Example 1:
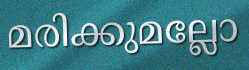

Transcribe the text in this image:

മരിക്കുമല്ലോ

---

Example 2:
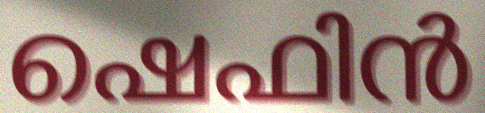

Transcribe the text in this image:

ഷെഫിൻ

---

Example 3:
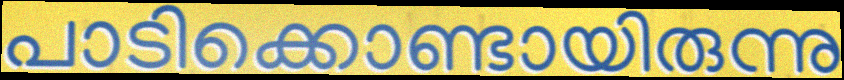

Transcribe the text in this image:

പാടിക്കൊണ്ടായിരുന്നു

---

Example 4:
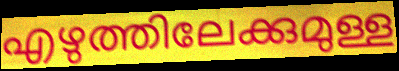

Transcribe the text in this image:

എഴുത്തിലേക്കുമുള്ള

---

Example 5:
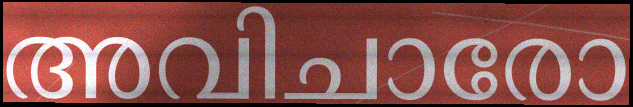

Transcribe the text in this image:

അവിചാരോ